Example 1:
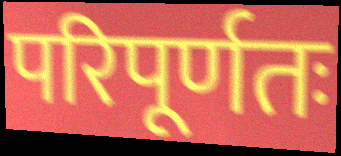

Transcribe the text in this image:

परिपूर्णतः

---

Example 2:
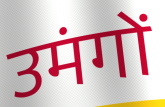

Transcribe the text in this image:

उमंगों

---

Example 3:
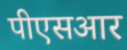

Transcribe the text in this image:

पीएसआर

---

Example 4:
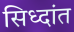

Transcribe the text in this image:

सिध्दांत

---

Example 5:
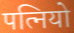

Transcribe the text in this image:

पत्नियो